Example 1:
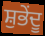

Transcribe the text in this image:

ਸ਼ੁਭੇਂਦੂ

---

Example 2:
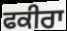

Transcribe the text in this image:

ਫਕੀਰਾ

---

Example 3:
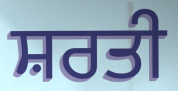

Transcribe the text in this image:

ਸ਼ਰਤੀ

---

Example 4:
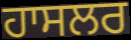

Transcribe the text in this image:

ਹਾਸਲਰ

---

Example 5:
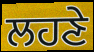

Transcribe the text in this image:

ਲਹਣੇ